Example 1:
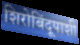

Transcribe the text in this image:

शिरोबिंदूपाशी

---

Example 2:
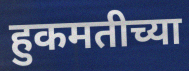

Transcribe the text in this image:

हुकमतीच्या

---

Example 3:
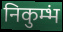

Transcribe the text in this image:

निकुम्भं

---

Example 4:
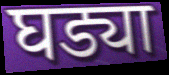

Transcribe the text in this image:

घड्या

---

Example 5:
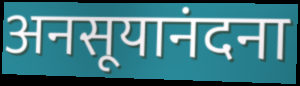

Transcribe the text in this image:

अनसूयानंदना